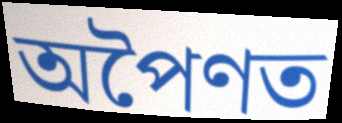
অপৈণত